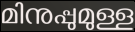
മിനുപ്പുമുള്ള